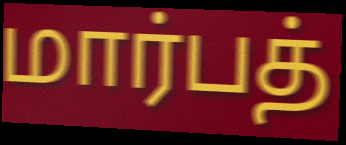
மார்பத்